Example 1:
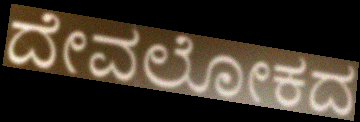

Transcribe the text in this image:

ದೇವಲೋಕದ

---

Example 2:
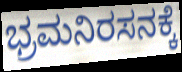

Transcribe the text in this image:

ಭ್ರಮನಿರಸನಕ್ಕೆ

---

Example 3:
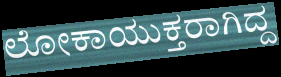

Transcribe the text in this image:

ಲೋಕಾಯುಕ್ತರಾಗಿದ್ದ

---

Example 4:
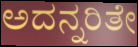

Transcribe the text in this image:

ಅದನ್ನರಿತೇ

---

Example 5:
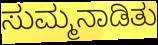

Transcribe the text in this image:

ಸುಮ್ಮನಾಡಿತು